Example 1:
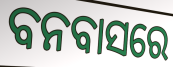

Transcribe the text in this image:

ବନବାସରେ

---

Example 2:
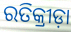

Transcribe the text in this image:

ରତିକ୍ରୀଡ଼ା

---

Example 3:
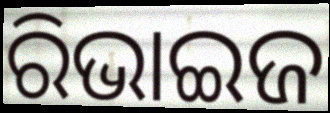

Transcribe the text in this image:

ରିଭାଇଜ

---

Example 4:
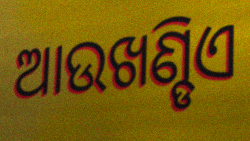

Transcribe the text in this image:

ଆଉଖଣ୍ଡିଏ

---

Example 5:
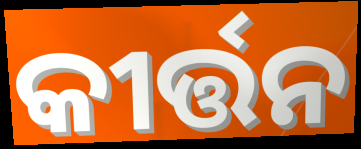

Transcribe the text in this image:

କୀର୍ତ୍ତନ